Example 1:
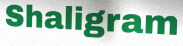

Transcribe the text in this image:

Shaligram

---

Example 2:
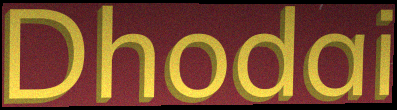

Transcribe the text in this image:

Dhodai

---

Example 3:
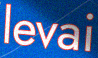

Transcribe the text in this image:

levai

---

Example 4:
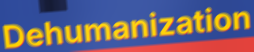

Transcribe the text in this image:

Dehumanization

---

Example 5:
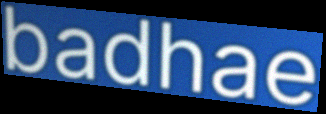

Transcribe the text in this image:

badhae